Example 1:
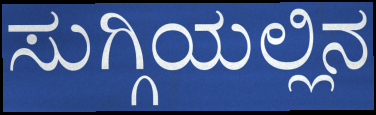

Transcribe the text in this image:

ಸುಗ್ಗಿಯಲ್ಲಿನ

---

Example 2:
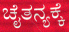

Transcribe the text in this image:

ಚೈತನ್ಯಕ್ಕೆ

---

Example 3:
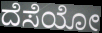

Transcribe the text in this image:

ದೆಸೆಯೋ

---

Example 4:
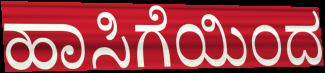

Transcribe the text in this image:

ಹಾಸಿಗೆಯಿಂದ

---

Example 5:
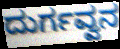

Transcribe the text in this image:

ದುರ್ಗವ್ವನ